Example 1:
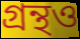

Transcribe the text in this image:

গ্রন্থও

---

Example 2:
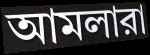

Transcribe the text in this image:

আমলারা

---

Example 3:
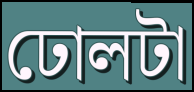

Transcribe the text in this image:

ঢোলটা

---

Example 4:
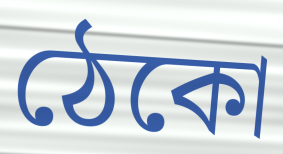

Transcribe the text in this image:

ঠেকো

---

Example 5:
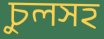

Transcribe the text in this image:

চুলসহ